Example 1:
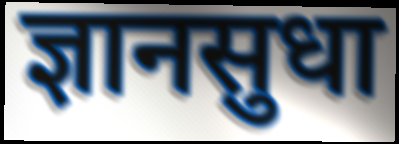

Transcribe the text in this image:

ज्ञानसुधा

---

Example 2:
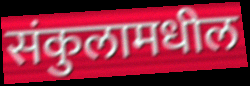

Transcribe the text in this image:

संकुलामधील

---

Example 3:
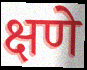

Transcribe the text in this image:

क्षणे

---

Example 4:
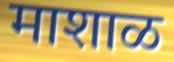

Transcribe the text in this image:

माशाळ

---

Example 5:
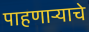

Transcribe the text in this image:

पाहणाऱ्याचे